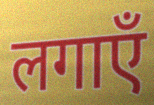
लगाएँ